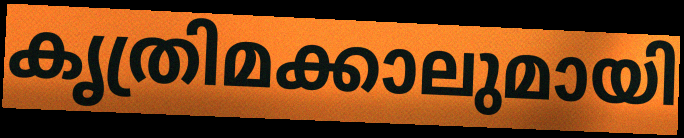
കൃത്രിമക്കാലുമായി